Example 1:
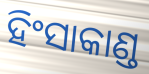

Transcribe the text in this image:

ହିଂସାକାଣ୍ଡ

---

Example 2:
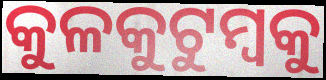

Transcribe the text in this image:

କୁଳକୁଟୁମ୍ବକୁ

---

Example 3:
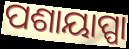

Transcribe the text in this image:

ପଶାୟାପ୍ପା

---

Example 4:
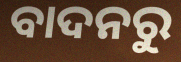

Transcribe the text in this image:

ବାଦନରୁ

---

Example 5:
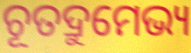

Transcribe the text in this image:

ଚୂତଦ୍ରୁମେଭ୍ୟ